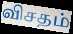
விசதம்